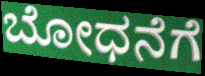
ಬೋಧನೆಗೆ